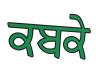
ਕਬਕੇ